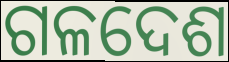
ଗଳଦେଶ